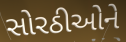
સોરઠીઓને